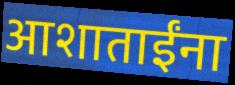
आशाताईंना